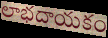
లాభదాయకం